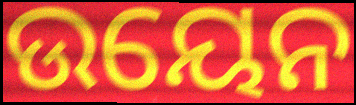
ଉୟେନ